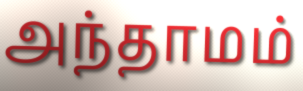
அந்தாமம்